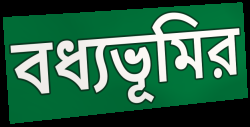
বধ্যভূমির